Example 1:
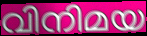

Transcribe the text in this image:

വിനിമയ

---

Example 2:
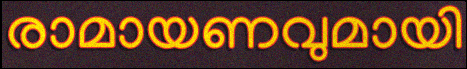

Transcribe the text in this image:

രാമായണവുമായി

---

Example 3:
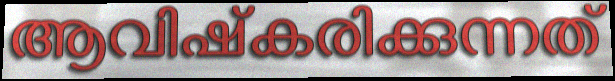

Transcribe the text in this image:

ആവിഷ്‌കരിക്കുന്നത്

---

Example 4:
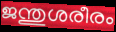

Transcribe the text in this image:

ജന്തുശരീരം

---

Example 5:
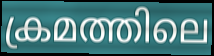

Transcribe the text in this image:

ക്രമത്തിലെ